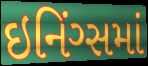
ઇનિંગ્સમાં